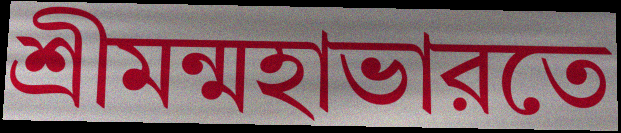
শ্রীমন্মহাভারতে